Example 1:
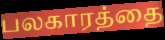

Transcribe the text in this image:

பலகாரத்தை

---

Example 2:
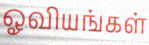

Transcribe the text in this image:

ஓவியங்கள்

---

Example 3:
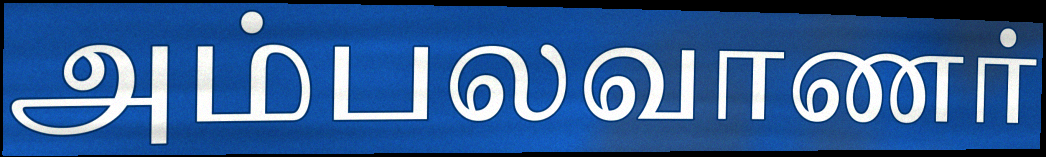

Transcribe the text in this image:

அம்பலவாணர்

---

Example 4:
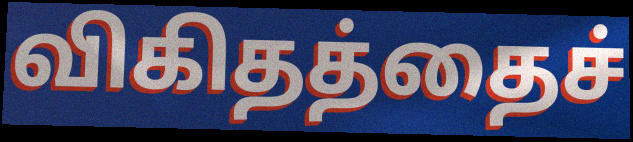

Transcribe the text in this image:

விகிதத்தைச்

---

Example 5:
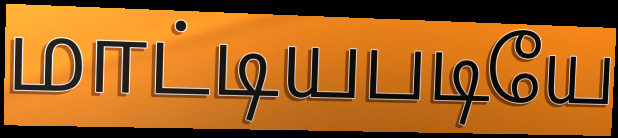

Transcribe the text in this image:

மாட்டியபடியே